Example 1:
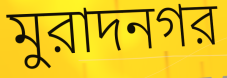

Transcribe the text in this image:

মুরাদনগর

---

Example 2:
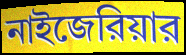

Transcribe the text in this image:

নাইজেরিয়ার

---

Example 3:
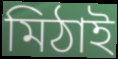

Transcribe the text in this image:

মিঠাই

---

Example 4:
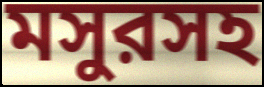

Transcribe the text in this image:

মসুরসহ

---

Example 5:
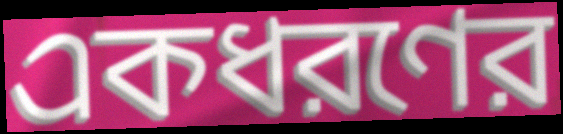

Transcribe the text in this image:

একধরণের